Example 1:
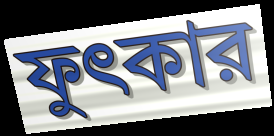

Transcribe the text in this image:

ফুৎকার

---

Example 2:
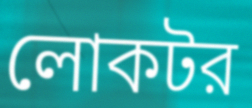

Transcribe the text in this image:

লোকটর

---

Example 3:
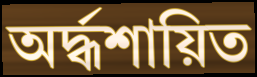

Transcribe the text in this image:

অর্দ্ধশায়িত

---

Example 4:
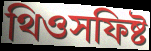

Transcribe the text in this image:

থিওসফিষ্ট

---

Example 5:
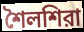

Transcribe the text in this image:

শৈলশিরা